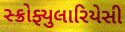
સ્ક્રોફ્યુલારિયેસી